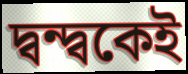
দ্বন্দ্বকেই